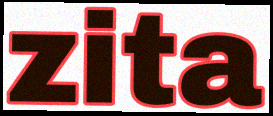
zita